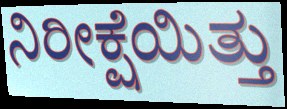
ನಿರೀಕ್ಷೆಯಿತ್ತು